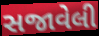
સજાવેલી